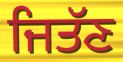
ਜਿਤੱਣ